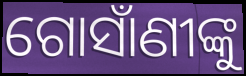
ଗୋସାଁଣୀଙ୍କୁ